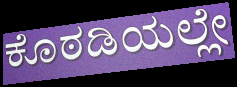
ಕೊಠಡಿಯಲ್ಲೇ